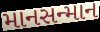
માનસન્માન